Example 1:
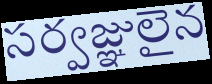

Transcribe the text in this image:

సర్వజ్ఞులైన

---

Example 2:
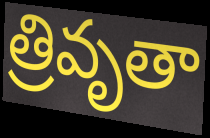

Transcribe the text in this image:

త్రివృతా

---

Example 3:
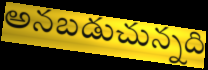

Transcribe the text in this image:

అనబడుచున్నది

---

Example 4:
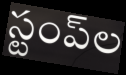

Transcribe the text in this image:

స్టంప్‌ల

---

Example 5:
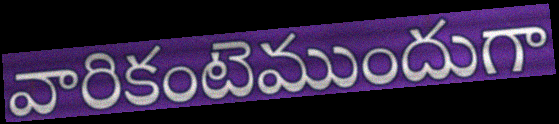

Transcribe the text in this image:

వారికంటెముందుగా